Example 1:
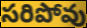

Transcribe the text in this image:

సరిపోవు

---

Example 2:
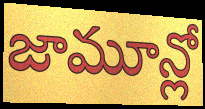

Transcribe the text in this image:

జామూన్లో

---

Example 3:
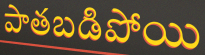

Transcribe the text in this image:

పాతబడిపోయి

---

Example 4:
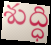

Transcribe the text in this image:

శుద్ధి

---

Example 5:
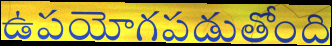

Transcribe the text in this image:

ఉపయోగపడుతోంది